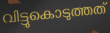
വിട്ടുകൊടുത്തത്